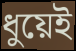
ধুয়েই